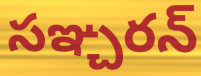
సఞ్చరన్